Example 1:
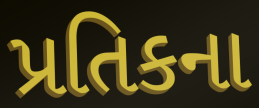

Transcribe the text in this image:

પ્રતિકના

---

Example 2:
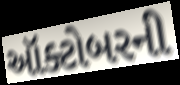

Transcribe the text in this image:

ઑક્ટોબરની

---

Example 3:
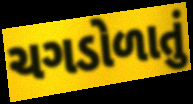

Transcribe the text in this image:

ચગડોળાતું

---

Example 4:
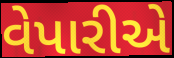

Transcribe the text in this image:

વેપારીએ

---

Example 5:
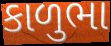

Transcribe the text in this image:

કાળુભા